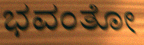
ಭವಂತೋ